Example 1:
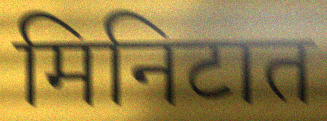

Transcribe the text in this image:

मिनिटात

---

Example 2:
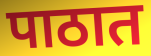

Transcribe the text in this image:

पाठात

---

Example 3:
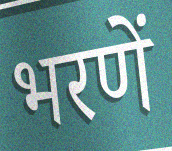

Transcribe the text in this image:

भरणें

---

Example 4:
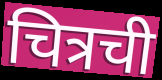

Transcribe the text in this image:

चित्रची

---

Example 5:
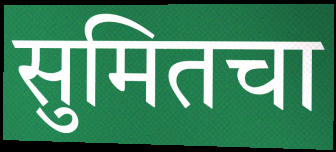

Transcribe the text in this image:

सुमितचा